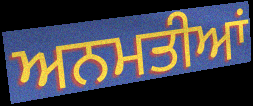
ਅਨਮਤੀਆਂ